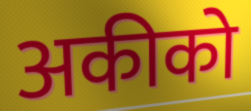
अकीको